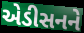
એડીસનને